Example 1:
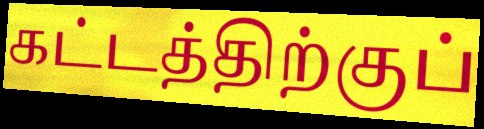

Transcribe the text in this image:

கட்டத்திற்குப்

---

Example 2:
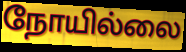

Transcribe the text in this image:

நோயில்லை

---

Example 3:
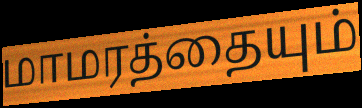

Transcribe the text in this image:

மாமரத்தையும்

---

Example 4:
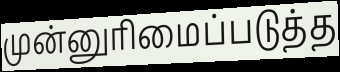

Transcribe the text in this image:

முன்னுரிமைப்படுத்த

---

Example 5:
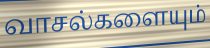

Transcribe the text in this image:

வாசல்களையும்